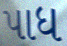
પાધ